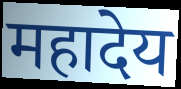
महादेय